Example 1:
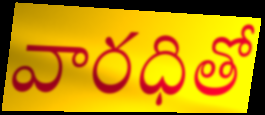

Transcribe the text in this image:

వారధితో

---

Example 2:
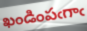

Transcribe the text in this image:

ఖండింపఁగాఁ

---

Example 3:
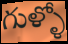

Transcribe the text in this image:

గుళ్ళో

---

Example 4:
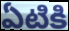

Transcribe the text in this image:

ఏటికి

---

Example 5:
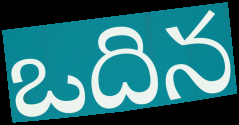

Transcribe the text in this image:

ఒదిన